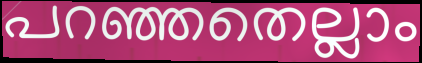
പറഞ്ഞതെല്ലാം